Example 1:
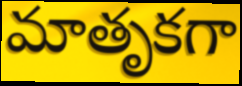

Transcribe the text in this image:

మాతృకగా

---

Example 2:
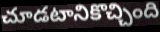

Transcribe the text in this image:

చూడటానికొచ్చింది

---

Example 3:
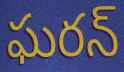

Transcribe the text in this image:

ఘరన్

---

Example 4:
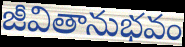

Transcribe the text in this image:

జీవితానుభవం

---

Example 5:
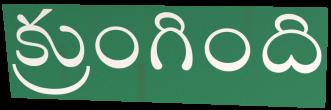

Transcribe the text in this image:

క్రుంగింది